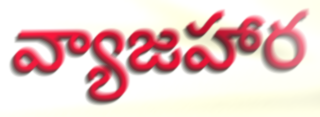
వ్యాజహార